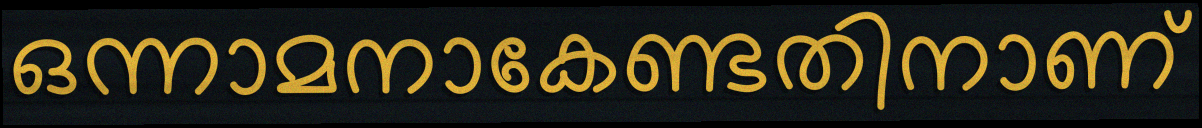
ഒന്നാമനാകേണ്ടതിനാണ്